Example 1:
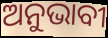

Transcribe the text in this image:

ଅନୁଭାବୀ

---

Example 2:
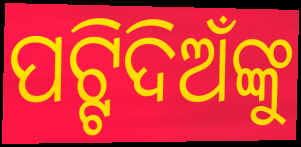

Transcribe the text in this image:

ପଟ୍ଟିଦିଅଁଙ୍କୁ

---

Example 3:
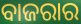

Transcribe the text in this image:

ବାଜରାର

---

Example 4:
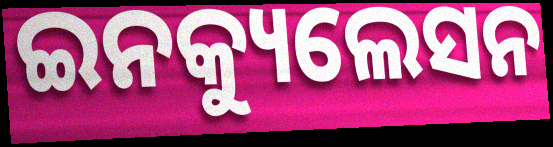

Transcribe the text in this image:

ଇନକ୍ୟୁଲେସନ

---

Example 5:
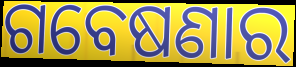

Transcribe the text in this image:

ଗବେଷଣାର